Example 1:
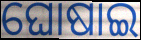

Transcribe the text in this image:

ଘୋଷାଇ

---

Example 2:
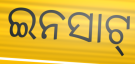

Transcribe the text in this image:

ଇନସାଟ୍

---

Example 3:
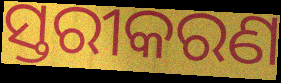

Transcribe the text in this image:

ସ୍ତରୀକରଣ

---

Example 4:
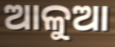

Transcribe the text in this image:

ଆଳୁଆ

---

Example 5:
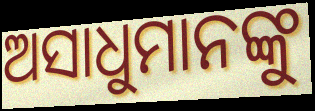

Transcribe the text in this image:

ଅସାଧୁମାନଙ୍କୁ